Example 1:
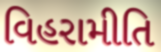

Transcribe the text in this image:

વિહરામીતિ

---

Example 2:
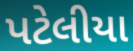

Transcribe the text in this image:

પટેલીયા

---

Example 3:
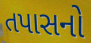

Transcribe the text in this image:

તપાસનો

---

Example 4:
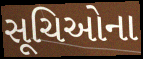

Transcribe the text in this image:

સૂચિઓના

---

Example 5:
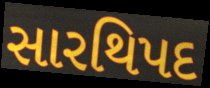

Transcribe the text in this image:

સારથિપદ